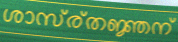
ശാസ്ര്തജ്ഞന്